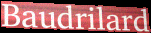
Baudrilard